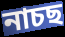
নাচছ